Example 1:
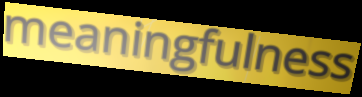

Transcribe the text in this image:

meaningfulness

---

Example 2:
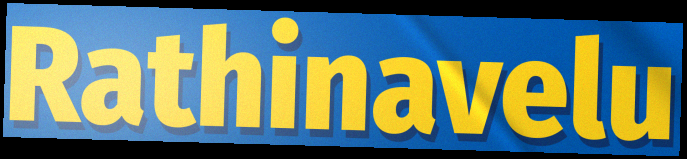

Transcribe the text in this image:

Rathinavelu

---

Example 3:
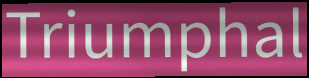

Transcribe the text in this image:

Triumphal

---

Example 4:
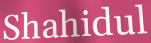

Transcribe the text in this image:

Shahidul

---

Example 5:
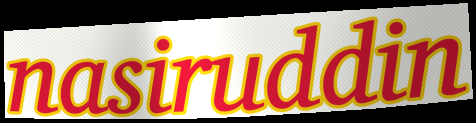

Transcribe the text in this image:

nasiruddin